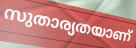
സുതാര്യതയാണ്